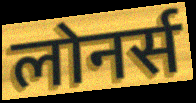
लोनर्स